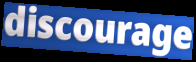
discourage